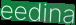
eedina